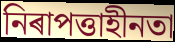
নিৰাপত্তাহীনতা